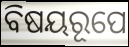
ବିଷୟରୂପେ